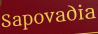
Sapovadia